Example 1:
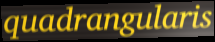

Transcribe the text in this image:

quadrangularis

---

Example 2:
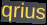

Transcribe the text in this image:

qrius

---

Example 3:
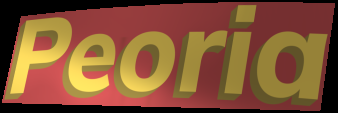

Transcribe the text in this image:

Peoria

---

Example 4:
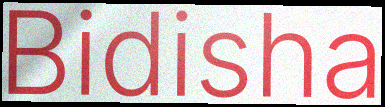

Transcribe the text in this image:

Bidisha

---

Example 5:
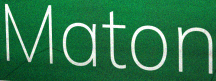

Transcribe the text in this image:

Maton